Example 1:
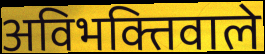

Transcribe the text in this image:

अविभक्तिवाले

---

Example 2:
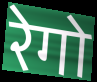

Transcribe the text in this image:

रेगो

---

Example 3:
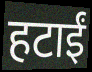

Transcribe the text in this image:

हटाईं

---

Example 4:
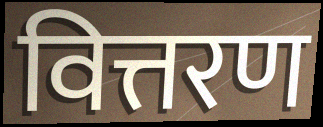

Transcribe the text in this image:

वित्तरण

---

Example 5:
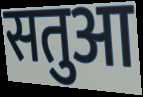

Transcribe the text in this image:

सतुआ